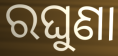
ରଘୁଣା